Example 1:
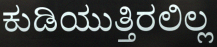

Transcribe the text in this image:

ಕುಡಿಯುತ್ತಿರಲಿಲ್ಲ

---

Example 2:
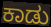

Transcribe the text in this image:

ಕಾಡು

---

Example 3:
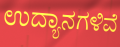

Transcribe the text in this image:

ಉದ್ಯಾನಗಳಿವೆ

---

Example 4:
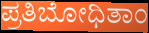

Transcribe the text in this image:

ಪ್ರತಿಬೋಧಿತಾಂ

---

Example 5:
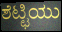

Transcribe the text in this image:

ಶೆಟ್ಟಿಯು